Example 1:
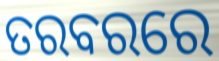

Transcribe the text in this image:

ତରବରରେ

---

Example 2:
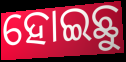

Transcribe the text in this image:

ହୋଇଛୁ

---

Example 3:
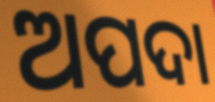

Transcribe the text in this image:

ଅପଦା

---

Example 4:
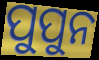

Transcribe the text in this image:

ପୁପୁନ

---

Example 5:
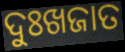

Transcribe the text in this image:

ଦୁଃଖଜାତ